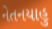
નેતનયાહુ